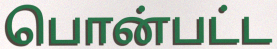
பொன்பட்ட